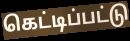
கெட்டிப்பட்டு